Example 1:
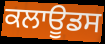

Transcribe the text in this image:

ਕਲਾਊਡਸ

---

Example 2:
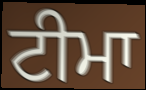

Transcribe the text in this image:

ਟੀਮਾ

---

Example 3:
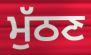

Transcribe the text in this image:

ਮੁੱਠਣ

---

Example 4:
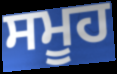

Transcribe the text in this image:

ਸਮੂਹ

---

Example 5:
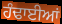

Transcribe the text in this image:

ਹੰਢਾਈਆਂ